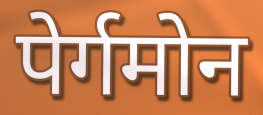
पेर्गमोन